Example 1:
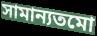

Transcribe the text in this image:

সামান্যতমো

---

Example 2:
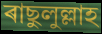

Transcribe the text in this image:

ৰাছুলুল্লাহ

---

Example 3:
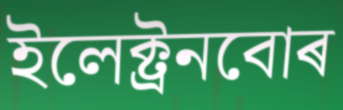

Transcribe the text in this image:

ইলেক্ট্ৰনবোৰ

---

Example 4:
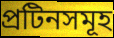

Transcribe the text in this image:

প্ৰটিনসমূহ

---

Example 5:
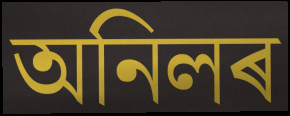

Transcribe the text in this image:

অনিলৰ